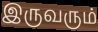
இருவரும்